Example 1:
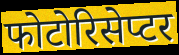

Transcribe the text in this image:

फोटोरिसेप्टर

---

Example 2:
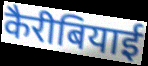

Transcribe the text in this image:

कैरीबियाई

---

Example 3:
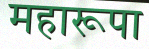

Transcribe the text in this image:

महारूपा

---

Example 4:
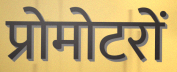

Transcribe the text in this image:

प्रोमोटरों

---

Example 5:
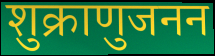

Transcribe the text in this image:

शुक्राणुजनन